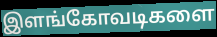
இளங்கோவடிகளை